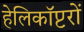
हेलिकॉप्टरों